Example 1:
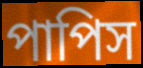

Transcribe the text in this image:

পাপিস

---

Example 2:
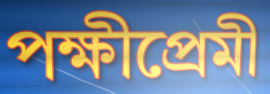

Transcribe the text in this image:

পক্ষীপ্রেমী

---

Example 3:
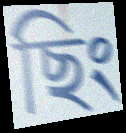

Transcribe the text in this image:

ছিং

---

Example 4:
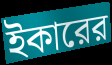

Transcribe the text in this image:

ইকারের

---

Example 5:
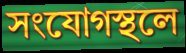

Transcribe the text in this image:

সংযোগস্থলে